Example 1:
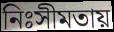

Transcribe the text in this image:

নিঃসীমতায়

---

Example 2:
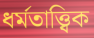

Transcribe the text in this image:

ধর্মতাত্ত্বিক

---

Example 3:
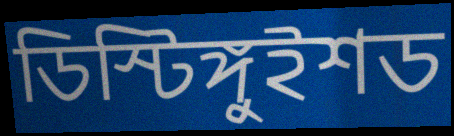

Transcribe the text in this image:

ডিস্টিঙ্গুইশড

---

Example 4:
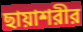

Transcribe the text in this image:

ছায়াশরীর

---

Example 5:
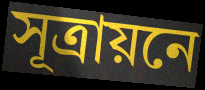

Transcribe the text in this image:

সূত্রায়নে